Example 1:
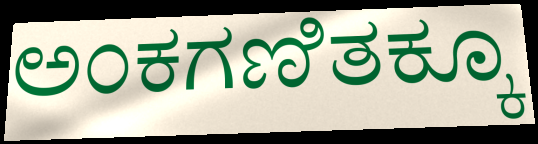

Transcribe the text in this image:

ಅಂಕಗಣಿತಕ್ಕೂ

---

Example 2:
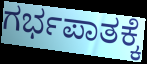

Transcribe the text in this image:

ಗರ್ಭಪಾತಕ್ಕೆ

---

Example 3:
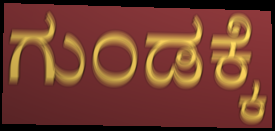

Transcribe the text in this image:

ಗುಂಡಕ್ಕೆ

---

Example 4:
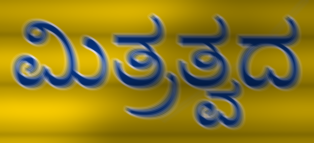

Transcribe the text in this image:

ಮಿತ್ರತ್ವದ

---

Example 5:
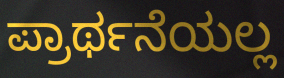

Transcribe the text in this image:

ಪ್ರಾರ್ಥನೆಯಲ್ಲ